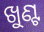
ଖୁଣ୍ଟ